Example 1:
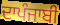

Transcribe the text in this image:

ਦਾਪੰਜਾਬੀ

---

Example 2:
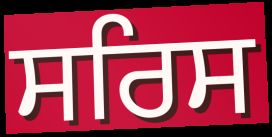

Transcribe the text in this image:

ਸਰਿਸ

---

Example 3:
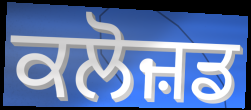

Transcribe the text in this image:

ਕਲੋਜ਼ਡ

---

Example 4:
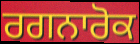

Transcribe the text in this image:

ਰਗਨਾਰੋਕ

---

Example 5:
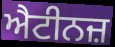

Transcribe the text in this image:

ਐਟੀਨਜ਼